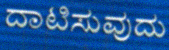
ದಾಟಿಸುವುದು